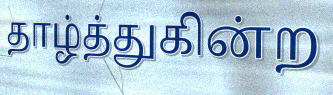
தாழ்த்துகின்ற